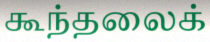
கூந்தலைக்